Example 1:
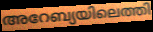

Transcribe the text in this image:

അറേബ്യയിലെത്തി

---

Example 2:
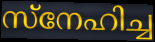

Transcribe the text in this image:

സ്നേഹിച്ച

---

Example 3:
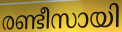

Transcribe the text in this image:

രണ്ടീസായി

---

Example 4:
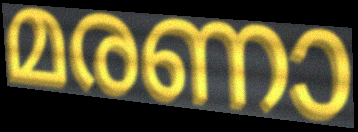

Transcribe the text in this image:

മരണാ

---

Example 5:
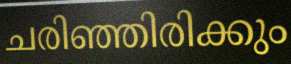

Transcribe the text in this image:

ചരിഞ്ഞിരിക്കും